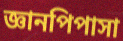
জ্ঞানপিপাসা